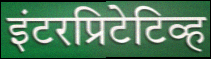
इंटरप्रिटेटिव्ह